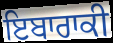
ਇਬਾਰਾਕੀ